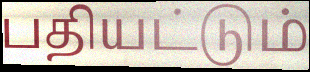
பதியட்டும்